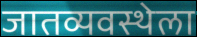
जातव्यवस्थेला